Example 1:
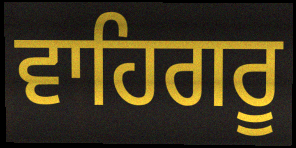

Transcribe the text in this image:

ਵਾਹਿਗਰੂ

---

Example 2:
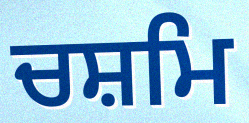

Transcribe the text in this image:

ਚਸ਼ਮਿ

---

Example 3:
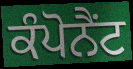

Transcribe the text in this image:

ਕੰਪੋਨੈਂਟ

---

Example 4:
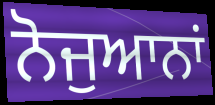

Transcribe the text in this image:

ਨੋਜੁਆਨਾਂ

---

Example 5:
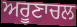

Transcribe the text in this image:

ਅਰੂਣਾਚਲ